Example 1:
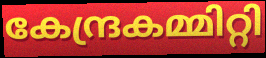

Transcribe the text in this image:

കേന്ദ്രകമ്മിറ്റി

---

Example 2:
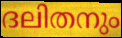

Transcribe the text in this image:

ദലിതനും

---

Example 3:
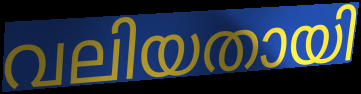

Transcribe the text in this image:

വലിയതായി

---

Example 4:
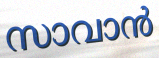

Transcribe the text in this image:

സാവാൻ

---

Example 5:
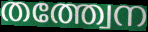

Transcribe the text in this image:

തത്ത്വേന